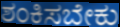
ಶಂಕಿಸಬೇಕು